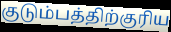
குடும்பத்திற்குரிய